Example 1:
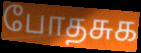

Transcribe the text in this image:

போதசுக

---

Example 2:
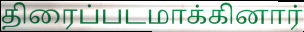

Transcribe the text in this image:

திரைப்படமாக்கினார்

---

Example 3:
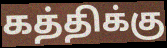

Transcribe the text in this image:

கத்திக்கு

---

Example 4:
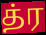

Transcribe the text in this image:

த்ர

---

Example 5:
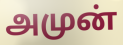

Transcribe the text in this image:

அமுன்